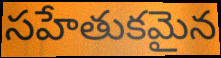
సహేతుకమైన